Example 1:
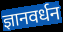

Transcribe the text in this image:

ज्ञानवर्धन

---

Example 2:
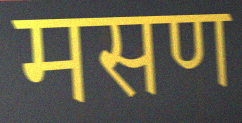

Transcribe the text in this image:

मसण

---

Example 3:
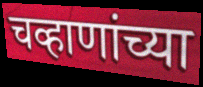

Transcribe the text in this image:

चव्हाणांच्या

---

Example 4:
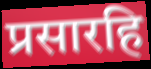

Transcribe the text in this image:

प्रसारहि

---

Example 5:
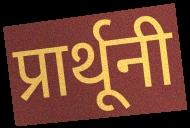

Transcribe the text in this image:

प्रार्थूनी